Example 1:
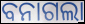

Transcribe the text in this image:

ବନାଗଲା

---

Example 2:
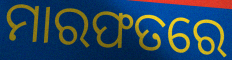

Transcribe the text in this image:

ମାରଫତରେ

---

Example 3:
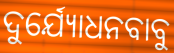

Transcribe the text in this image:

ଦୁର୍ଯ୍ୟୋଧନବାବୁ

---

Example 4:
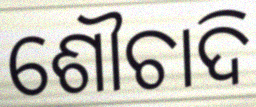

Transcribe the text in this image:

ଶୌଚାଦି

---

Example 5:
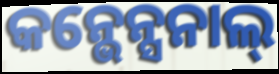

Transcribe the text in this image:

କନ୍ଭେନ୍ସନାଲ୍